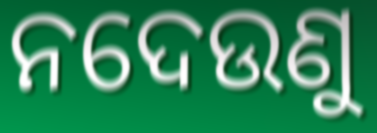
ନଦେଉଣୁ